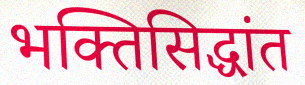
भक्तिसिद्धांत